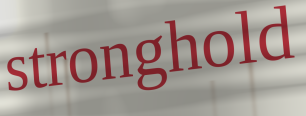
stronghold